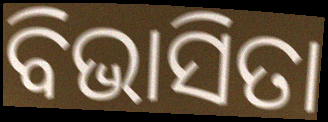
ବିଭାସିତା